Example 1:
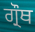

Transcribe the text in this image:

ਗ੍ਰੌਥ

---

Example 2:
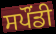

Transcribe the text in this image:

ਸਪੌਂਡੀ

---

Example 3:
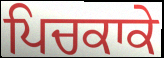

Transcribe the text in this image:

ਪਿਚਕਾਕੇ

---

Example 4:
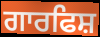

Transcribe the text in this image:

ਗਾਰਫਿਸ਼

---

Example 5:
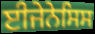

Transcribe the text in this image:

ਈਜੇਨੇਸਿਸ